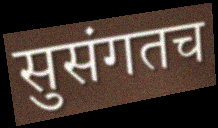
सुसंगतच